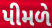
પીમળે